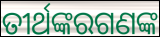
ତୀର୍ଥଙ୍କରଗଣଙ୍କ